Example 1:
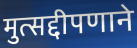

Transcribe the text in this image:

मुत्सद्दीपणाने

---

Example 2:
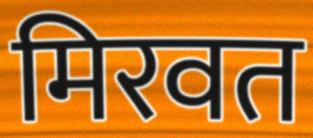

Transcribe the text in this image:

मिरवत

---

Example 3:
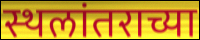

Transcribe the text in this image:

स्थलांतराच्या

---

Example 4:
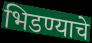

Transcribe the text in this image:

भिडण्याचे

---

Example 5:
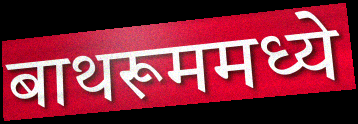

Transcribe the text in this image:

बाथरूममध्ये